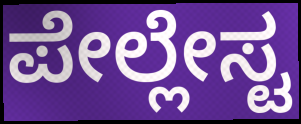
ಪೇಲ್ಲೇಸ್ಟ